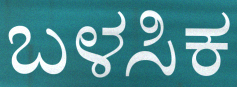
ಬಳಸಿಕ